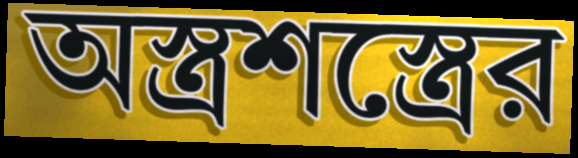
অস্ত্রশস্ত্রের